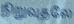
நிறுவுதலே